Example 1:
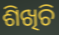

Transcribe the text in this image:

ଶିଖିଚି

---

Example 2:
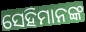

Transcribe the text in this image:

ସେହିମାନଙ୍କ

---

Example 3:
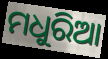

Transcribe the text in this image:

ମଧୁରିଆ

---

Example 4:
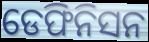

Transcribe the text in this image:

ଡେଫିନିସନ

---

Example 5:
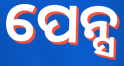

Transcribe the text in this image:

ପେନ୍ସ